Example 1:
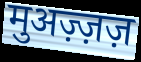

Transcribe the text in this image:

मुअज़्ज़ज़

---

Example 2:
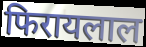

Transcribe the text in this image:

फिरायलाल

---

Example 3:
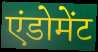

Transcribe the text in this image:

एंडोमेंट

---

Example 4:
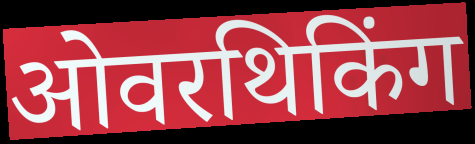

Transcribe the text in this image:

ओवरथिकिंग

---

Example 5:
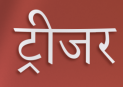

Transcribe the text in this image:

ट्रीजर